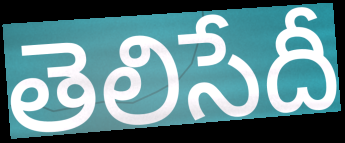
తెలిసేదీ